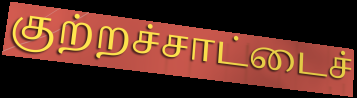
குற்றச்சாட்டைச்